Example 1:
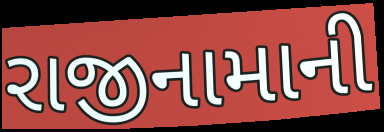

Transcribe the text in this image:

રાજીનામાની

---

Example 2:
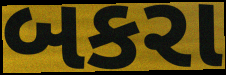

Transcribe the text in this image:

બકરા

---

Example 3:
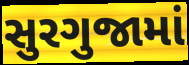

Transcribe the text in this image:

સુરગુજામાં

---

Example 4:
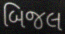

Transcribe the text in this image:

બિજલ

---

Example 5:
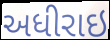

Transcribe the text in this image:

અધીરાઇ